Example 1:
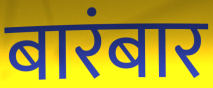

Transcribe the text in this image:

बारंबार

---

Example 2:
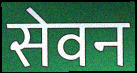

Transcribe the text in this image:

सेवन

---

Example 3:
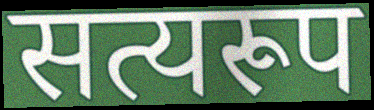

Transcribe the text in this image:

सत्यरूप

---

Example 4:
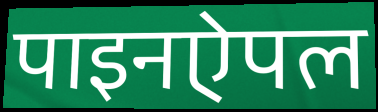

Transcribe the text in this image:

पाइनऐपल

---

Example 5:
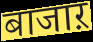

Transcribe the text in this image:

बाजाऱ